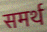
समर्थ